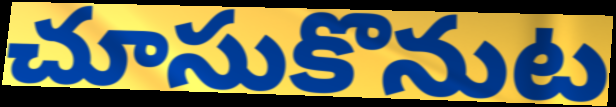
చూసుకొనుట